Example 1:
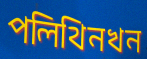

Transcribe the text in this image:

পলিথিনখন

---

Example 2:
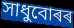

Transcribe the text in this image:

সাধুবোৰৰ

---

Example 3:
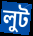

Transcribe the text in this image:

লুট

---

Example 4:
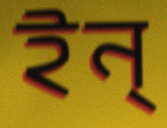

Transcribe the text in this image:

ইন্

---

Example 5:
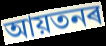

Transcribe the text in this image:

আয়তনৰ